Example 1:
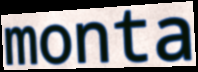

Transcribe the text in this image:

monta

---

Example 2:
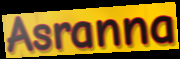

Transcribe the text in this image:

Asranna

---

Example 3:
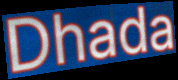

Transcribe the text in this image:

Dhada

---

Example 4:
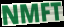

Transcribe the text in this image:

NMFT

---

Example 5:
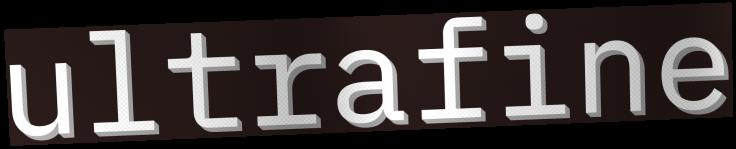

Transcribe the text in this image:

ultrafine